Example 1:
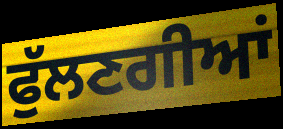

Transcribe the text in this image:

ਫੁੱਲਣਗੀਆਂ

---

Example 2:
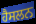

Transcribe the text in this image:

ਹੈਸਲਨ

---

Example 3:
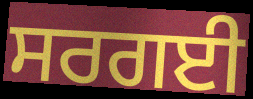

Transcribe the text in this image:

ਸਰਗਈ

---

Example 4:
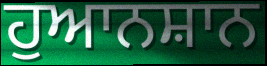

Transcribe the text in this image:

ਹੁਆਨਸ਼ਾਨ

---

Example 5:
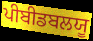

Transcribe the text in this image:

ਪੀਬੀਡਬਲਯੂ